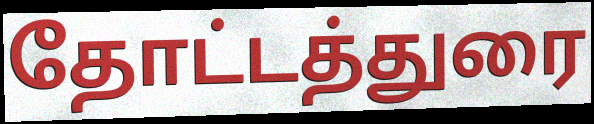
தோட்டத்துரை